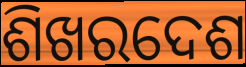
ଶିଖରଦେଶ